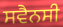
ਸਵੈਨਸੀ